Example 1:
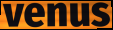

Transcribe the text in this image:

venus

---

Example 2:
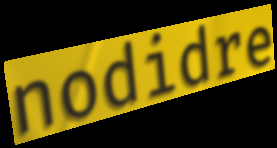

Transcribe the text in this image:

nodidre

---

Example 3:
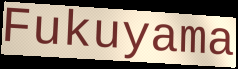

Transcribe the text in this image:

Fukuyama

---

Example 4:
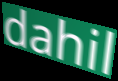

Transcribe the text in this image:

dahil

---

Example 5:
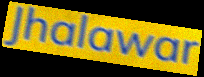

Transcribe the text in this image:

Jhalawar